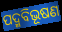
ପଦ୍ମବିଭୂଷଣ